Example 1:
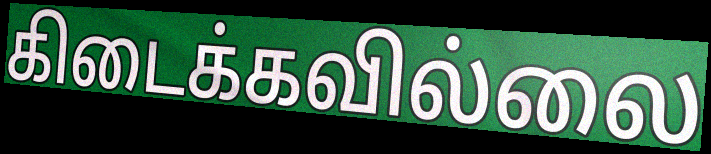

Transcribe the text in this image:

கிடைக்கவில்லை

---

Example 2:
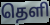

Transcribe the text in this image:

தெளி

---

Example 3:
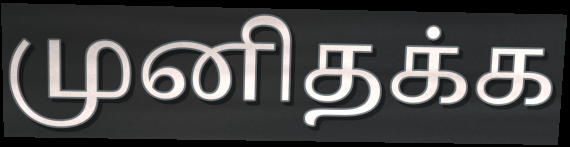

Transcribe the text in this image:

முனிதக்க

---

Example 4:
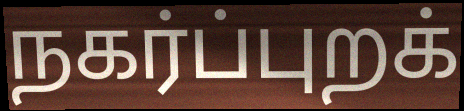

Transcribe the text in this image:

நகர்ப்புறக்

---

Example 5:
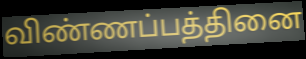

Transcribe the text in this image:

விண்ணப்பத்தினை